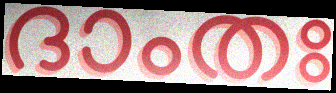
ദാംതഃ